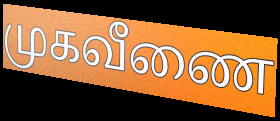
முகவீணை